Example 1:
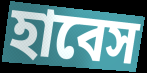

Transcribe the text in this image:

হাবেস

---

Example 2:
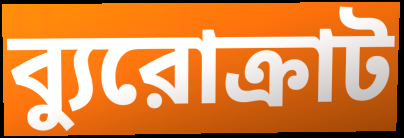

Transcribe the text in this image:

ব্যুরোক্রাট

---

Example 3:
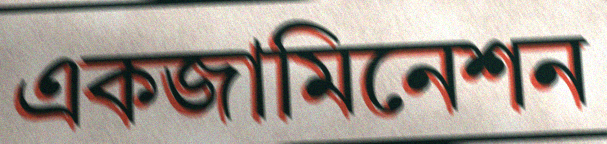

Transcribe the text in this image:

একজামিনেশন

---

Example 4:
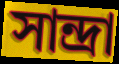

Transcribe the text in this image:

সান্দ্রা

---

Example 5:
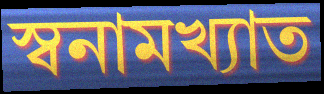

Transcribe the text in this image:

স্বনামখ্যাত